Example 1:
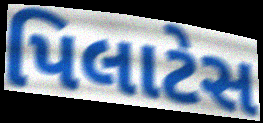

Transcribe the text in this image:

પિલાટેસ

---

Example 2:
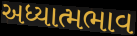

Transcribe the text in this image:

અધ્યાત્મભાવ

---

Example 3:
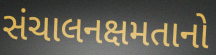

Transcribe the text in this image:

સંચાલનક્ષમતાનો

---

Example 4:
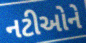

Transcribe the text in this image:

નટીઓને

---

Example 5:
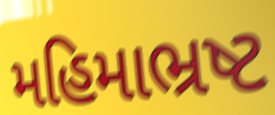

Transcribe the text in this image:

મહિમાભ્રષ્ટ